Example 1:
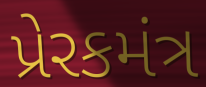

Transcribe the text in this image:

પ્રેરકમંત્ર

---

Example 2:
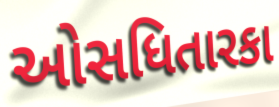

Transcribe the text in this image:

ઓસધિતારકા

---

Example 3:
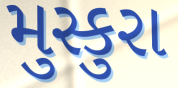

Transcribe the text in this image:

મુસ્કુરા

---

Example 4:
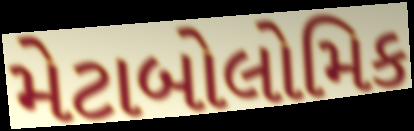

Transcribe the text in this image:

મેટાબોલોમિક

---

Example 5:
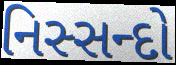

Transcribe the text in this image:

નિસ્સન્દો